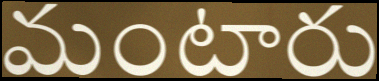
మంటారు